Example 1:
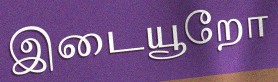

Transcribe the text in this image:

இடையூறோ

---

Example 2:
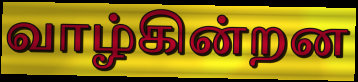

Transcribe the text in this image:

வாழ்கின்றன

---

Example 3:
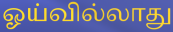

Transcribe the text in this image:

ஓய்வில்லாது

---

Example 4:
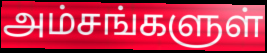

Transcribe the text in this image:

அம்சங்களுள்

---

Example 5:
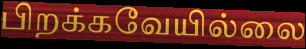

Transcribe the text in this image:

பிறக்கவேயில்லை